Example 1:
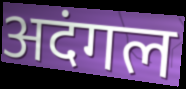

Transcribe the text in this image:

अदंगल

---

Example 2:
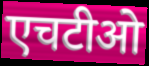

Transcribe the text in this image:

एचटीओ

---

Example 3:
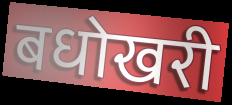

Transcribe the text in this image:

बधोखरी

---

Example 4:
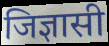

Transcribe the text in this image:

जिज्ञासी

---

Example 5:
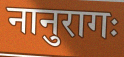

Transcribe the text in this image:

नानुरागः